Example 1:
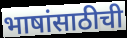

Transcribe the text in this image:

भाषांसाठीची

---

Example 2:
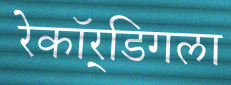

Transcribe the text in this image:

रेकॉर्डिगला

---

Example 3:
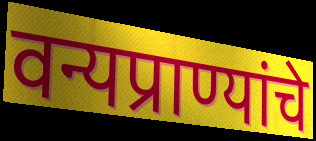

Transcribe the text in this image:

वन्यप्राण्यांचे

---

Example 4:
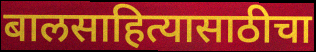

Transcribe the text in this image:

बालसाहित्यासाठीचा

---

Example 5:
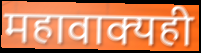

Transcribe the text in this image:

महावाक्यही